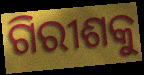
ଗିରୀଶକୁ